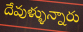
దేవుళ్ళున్నారు